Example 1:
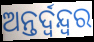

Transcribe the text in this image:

ଅନ୍ତର୍ଦ୍ୱନ୍ଦ୍ୱର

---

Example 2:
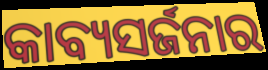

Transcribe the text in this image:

କାବ୍ୟସର୍ଜନାର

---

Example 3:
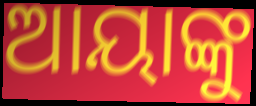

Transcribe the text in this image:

ଆୟାଙ୍କୁ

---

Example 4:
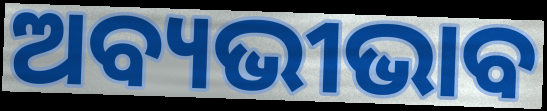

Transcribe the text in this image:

ଅବ୍ୟଭୀଭାବ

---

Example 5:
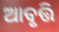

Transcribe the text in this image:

ଆବୃତ୍ତି